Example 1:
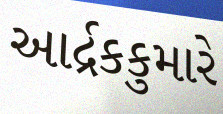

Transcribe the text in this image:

આર્દ્રકકુમારે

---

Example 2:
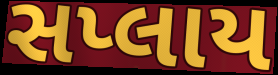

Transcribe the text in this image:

સપ્લાય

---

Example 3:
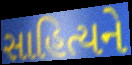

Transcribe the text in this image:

સાહિત્યને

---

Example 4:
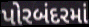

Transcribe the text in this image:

પોરબંદરમાં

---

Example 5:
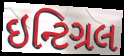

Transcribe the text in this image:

ઇન્ટિગ્રલ